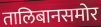
तालिबानसमोर